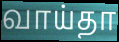
வாய்தா